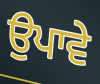
ਉਪਾਵੇ